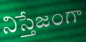
నిస్తేజంగా